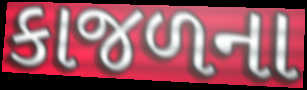
કાજળના